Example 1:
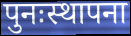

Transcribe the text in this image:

पुनःस्थापना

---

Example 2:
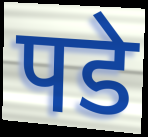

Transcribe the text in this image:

पडे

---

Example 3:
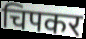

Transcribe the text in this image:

चिपकर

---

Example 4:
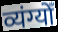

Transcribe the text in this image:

व्यंग्योँ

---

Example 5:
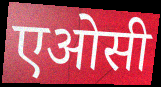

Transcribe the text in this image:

एओसी